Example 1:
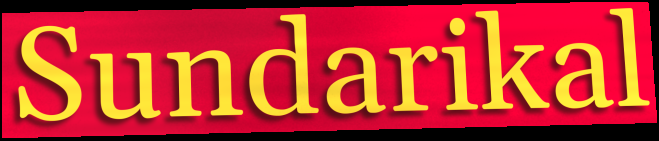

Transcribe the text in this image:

Sundarikal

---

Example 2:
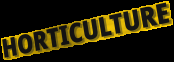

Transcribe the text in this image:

HORTICULTURE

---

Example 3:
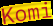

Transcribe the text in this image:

Komi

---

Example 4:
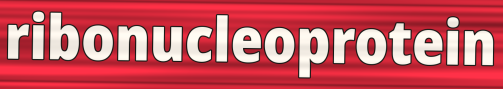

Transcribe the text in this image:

ribonucleoprotein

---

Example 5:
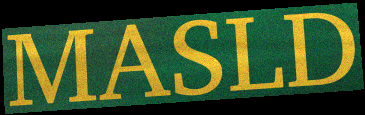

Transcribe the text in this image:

MASLD